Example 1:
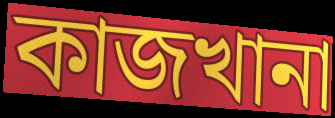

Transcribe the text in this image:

কাজখানা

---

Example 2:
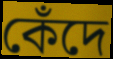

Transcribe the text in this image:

কেঁদে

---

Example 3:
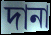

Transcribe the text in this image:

দানা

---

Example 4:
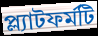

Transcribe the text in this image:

প্ল্যাটফর্মটি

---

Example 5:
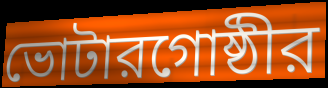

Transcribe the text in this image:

ভোটারগোষ্ঠীর